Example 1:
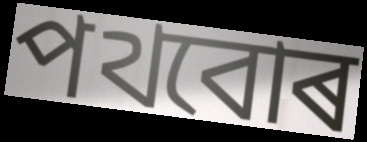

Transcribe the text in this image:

পথবোৰ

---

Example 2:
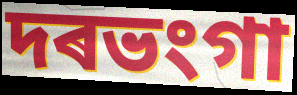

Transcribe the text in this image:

দৰভংগা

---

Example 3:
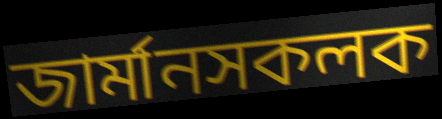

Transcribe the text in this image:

জাৰ্মানসকলক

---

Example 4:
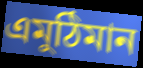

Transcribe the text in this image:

এমুঠিমান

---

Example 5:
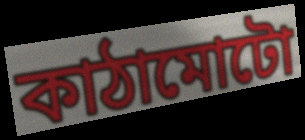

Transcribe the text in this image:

কাঠামোটো